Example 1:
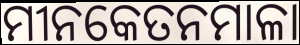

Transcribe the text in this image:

ମୀନକେତନମାଳା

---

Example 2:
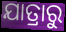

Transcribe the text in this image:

ଯାତ୍ରାରୁ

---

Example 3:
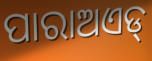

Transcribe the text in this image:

ପାରାଅଏଡ୍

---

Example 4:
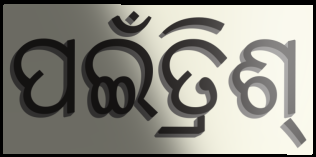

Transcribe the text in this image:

ପଇଁତ୍ରିଶ୍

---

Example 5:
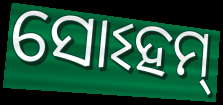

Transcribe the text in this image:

ସୋଽହମ୍